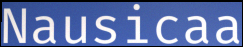
Nausicaa